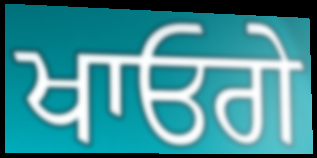
ਖਾਓਗੇ